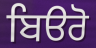
ਬਿੳਰੋ